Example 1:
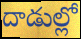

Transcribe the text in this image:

దాడుల్లో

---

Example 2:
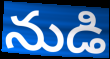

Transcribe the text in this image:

నుడి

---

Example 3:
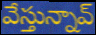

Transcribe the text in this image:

వేస్తున్నావ్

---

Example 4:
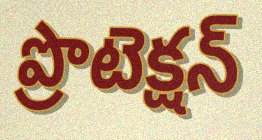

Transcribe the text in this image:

ప్రొటెక్షన్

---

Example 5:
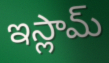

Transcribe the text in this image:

ఇస్లామ్